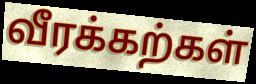
வீரக்கற்கள்